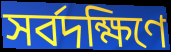
সর্বদক্ষিণে